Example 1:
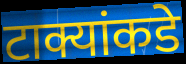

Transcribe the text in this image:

टाक्यांकडे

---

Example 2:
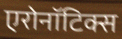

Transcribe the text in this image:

एरोनॉटिक्स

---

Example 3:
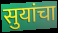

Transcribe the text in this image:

सुयांचा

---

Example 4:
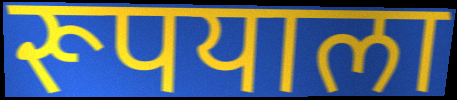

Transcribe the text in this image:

रूपयाला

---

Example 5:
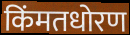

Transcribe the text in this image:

किंमतधोरण